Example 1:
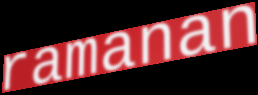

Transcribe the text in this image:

ramanan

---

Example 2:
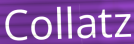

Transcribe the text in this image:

Collatz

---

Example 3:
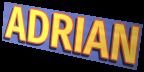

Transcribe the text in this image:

ADRIAN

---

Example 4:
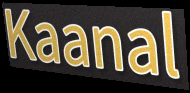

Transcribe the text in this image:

Kaanal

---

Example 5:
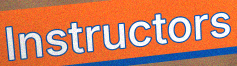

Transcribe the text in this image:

Instructors